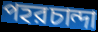
পহরচান্দা